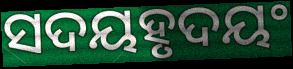
ସଦୟହୃଦୟଂ